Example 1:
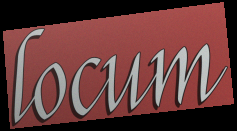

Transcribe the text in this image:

locum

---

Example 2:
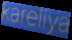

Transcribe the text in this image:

kareliya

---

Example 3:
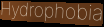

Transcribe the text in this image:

Hydrophobia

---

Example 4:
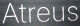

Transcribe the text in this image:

Atreus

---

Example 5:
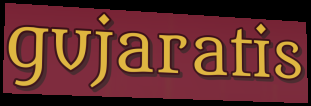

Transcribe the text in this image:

gujaratis